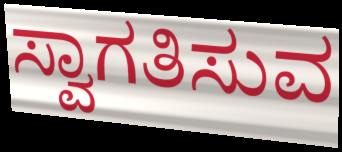
ಸ್ವಾಗತಿಸುವ